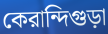
কেরান্দিগুড়া